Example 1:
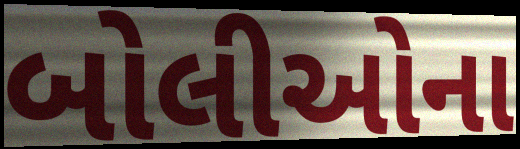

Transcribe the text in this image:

બોલીઓના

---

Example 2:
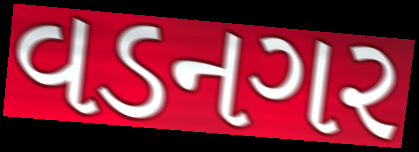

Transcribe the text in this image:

વડનગર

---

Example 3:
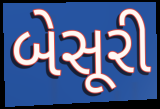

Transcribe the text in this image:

બેસૂરી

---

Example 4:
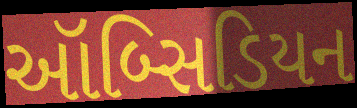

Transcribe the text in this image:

ઑબ્સિડિયન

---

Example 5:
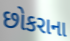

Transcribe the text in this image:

છોકરાના